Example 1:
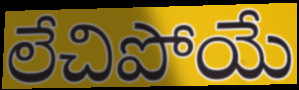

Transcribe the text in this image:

లేచిపోయే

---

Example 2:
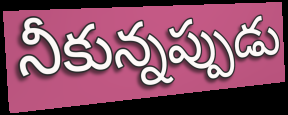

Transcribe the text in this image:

నీకున్నప్పుడు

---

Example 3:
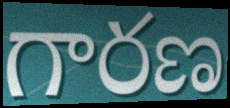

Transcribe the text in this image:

గారణ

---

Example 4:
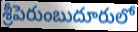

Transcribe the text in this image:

శ్రీపెరుంబుదూరులో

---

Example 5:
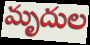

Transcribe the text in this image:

మృదుల